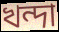
খন্দা